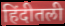
हिंदीतली